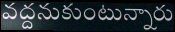
వద్దనుకుంటున్నారు